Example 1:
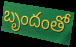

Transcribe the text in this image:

బృందంతో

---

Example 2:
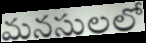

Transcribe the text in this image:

మనసులలో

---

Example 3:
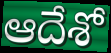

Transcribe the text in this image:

ఆదేశో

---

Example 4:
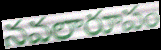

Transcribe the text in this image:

నవలారూపం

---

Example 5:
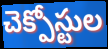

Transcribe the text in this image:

చెక్పోస్టుల